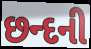
છન્દની